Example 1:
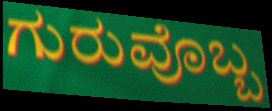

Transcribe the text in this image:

ಗುರುವೊಬ್ಬ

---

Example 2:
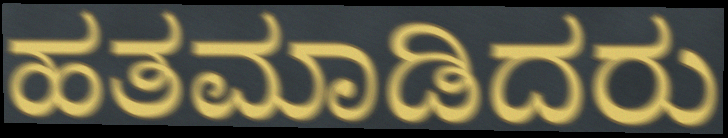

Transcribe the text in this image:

ಹತಮಾಡಿದರು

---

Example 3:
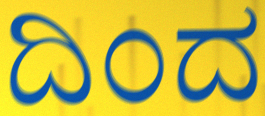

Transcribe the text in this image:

ದಿಂದ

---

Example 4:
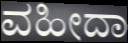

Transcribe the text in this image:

ವಹೀದಾ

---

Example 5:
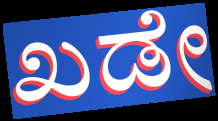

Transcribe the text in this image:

ಖಡೇ